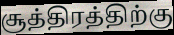
சூத்திரத்திற்கு